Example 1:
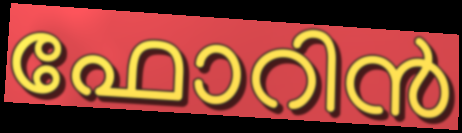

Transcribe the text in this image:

ഫോറിൻ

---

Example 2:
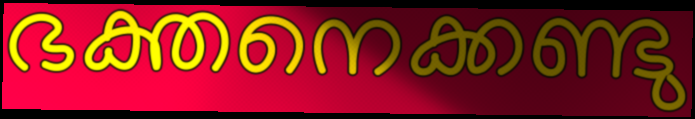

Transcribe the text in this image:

ഭക്തനെക്കണ്ടു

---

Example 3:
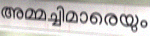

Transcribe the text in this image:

അമ്മച്ചിമാരെയും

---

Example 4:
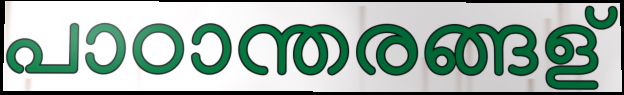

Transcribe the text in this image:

പാഠാന്തരങ്ങള്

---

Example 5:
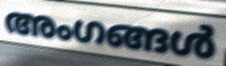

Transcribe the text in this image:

അംഗങ്ങൾ